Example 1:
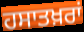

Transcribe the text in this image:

ਹਸਾਤਖ਼ਰਾਂ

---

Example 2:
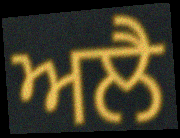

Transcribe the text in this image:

ਅਲੈ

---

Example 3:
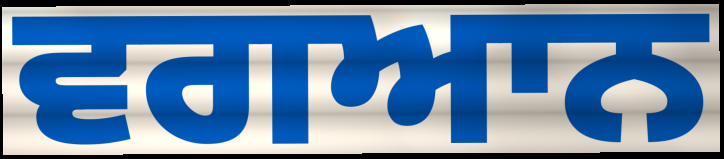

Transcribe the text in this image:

ਵਗਆਨ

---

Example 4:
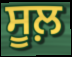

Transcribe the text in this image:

ਸੂਲ਼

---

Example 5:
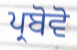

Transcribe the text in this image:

ਪ੍ਰਬੋਵੋ